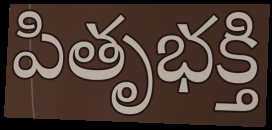
పితృభక్తి